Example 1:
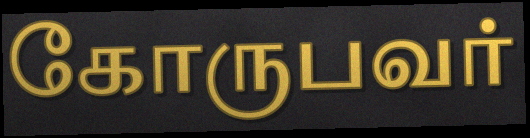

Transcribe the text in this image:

கோருபவர்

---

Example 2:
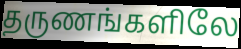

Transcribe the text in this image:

தருணங்களிலே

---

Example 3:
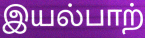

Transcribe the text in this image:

இயல்பாற்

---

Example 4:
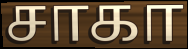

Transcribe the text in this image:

சாகா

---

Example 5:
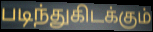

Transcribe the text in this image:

படிந்துகிடக்கும்